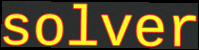
solver